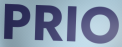
PRIO